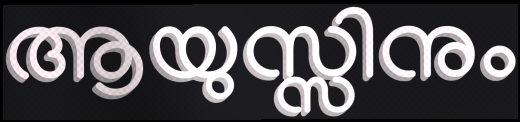
ആയുസ്സിനും